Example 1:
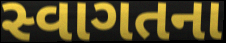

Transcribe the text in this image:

સ્વાગતના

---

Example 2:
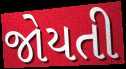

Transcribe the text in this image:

જોયતી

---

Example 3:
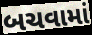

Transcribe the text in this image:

બચવામાં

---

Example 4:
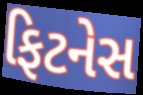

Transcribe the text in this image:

ફિટનેસ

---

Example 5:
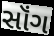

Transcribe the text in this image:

સૉંગ